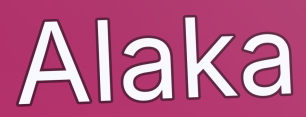
Alaka